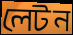
লেটন